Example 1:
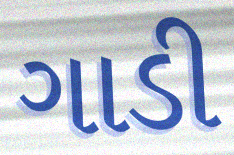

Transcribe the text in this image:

ગાડી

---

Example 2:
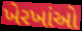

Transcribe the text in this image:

ખેરખાંઓ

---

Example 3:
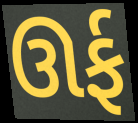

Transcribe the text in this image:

ઊર્ફ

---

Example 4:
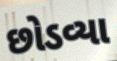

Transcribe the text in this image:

છોડવ્યા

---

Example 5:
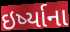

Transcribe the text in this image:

ઇર્ષ્યાના